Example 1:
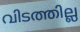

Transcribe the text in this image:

വിടത്തില്ല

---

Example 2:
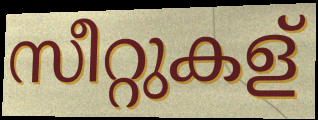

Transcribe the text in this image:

സീറ്റുകള്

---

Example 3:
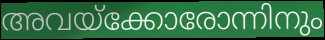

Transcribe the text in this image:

അവയ്ക്കോരോന്നിനും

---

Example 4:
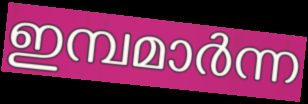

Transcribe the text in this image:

ഇമ്പമാർന്ന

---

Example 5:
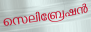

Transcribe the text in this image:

സെലിബ്രേഷൻ